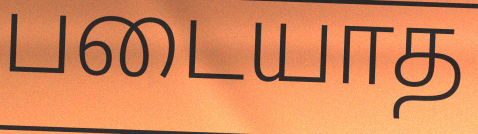
படையாத